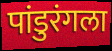
पांडुरंगला